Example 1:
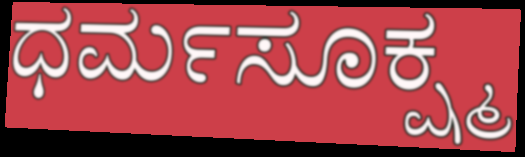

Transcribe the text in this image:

ಧರ್ಮಸೂಕ್ಷ್ಮ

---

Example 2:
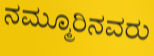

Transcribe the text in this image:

ನಮ್ಮೂರಿನವರು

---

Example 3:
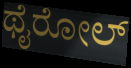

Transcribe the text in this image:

ಥೈರೋಲ್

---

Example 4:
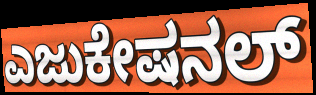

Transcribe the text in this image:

ಎಜುಕೇಷನಲ್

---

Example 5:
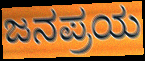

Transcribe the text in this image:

ಜನಪ್ರಯ